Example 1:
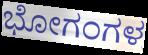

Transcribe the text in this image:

ಭೋಗಂಗಳ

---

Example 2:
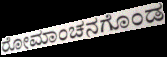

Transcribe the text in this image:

ರೋಮಾಂಚನಗೊಂಡ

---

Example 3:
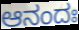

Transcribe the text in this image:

ಆನಂದಃ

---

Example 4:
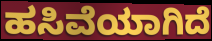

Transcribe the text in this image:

ಹಸಿವೆಯಾಗಿದೆ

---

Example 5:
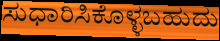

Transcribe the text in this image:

ಸುಧಾರಿಸಿಕೊಳ್ಳಬಹುದು